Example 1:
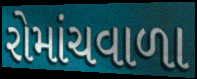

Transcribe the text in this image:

રોમાંચવાળા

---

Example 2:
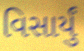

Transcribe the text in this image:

વિસાર્યું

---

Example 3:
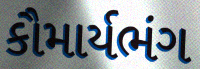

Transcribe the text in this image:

કૌમાર્યભંગ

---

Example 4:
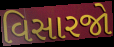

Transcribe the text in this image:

વિસારજો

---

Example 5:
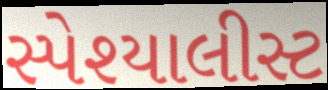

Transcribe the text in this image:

સ્પેશ્યાલીસ્ટ